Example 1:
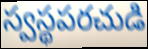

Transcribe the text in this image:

స్వస్థపరచుడి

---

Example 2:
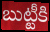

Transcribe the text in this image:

బుట్టీకి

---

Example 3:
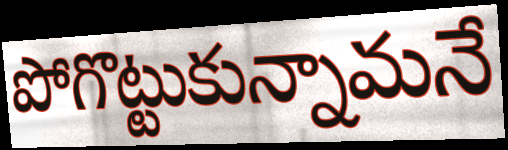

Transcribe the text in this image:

పోగొట్టుకున్నామనే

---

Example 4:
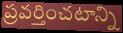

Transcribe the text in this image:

ప్రవర్తించటాన్ని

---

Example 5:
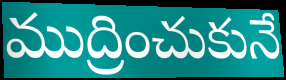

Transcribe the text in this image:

ముద్రించుకునే